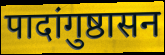
पादांगुष्ठासन